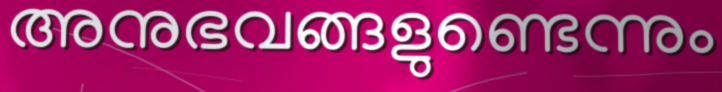
അനുഭവങ്ങളുണ്ടെന്നും